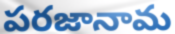
పరజానామ